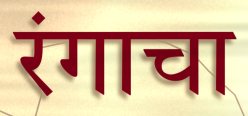
रंगाचा